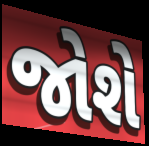
જોશે